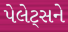
પેલેટ્સને